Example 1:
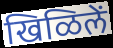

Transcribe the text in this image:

खिळिलें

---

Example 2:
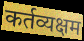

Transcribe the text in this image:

कर्तव्यक्षम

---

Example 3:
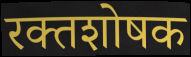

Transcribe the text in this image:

रक्तशोषक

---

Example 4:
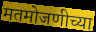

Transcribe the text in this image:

मतमोजणीच्या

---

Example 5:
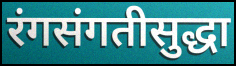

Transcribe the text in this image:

रंगसंगतीसुद्धा